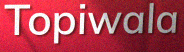
Topiwala